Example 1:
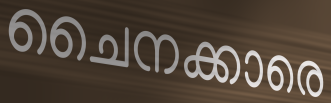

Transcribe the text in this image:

ചൈനക്കാരെ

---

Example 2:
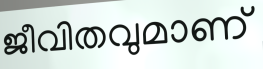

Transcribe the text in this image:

ജീവിതവുമാണ്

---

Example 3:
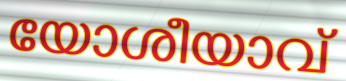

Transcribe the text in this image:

യോശീയാവ്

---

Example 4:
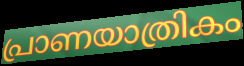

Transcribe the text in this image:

പ്രാണയാത്രികം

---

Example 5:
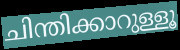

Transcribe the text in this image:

ചിന്തിക്കാറുള്ളൂ